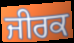
ਜੀਰਕ